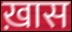
ख़ास